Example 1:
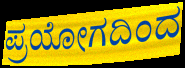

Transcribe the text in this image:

ಪ್ರಯೋಗದಿಂದ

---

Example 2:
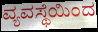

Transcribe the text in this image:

ವ್ಯವಸ್ಥೆಯಿಂದ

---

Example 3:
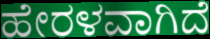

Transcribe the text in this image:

ಹೇರಳವಾಗಿದೆ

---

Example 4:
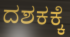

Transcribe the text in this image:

ದಶಕಕ್ಕೆ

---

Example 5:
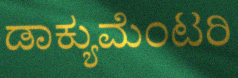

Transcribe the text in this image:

ಡಾಕ್ಯುಮೆಂಟರಿ